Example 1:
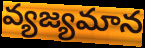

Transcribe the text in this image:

వ్యజ్యమాన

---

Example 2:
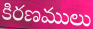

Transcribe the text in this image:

కిరణములు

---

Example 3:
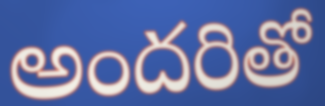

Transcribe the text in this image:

అందరితో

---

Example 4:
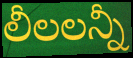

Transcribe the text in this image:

లీలలన్నీ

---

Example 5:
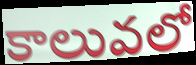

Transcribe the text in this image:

కాలువలో